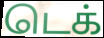
டெக்